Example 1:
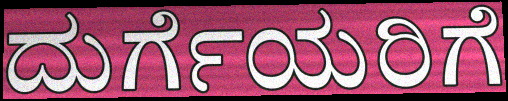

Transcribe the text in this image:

ದುರ್ಗೆಯರಿಗೆ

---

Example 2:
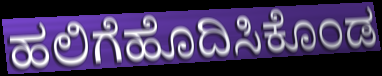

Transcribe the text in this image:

ಹಲಿಗೆಹೊದಿಸಿಕೊಂಡ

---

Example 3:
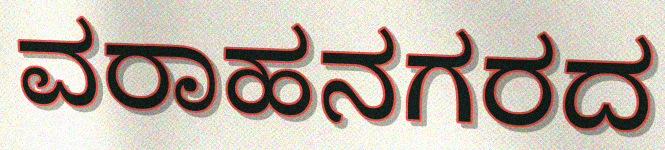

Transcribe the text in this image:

ವರಾಹನಗರದ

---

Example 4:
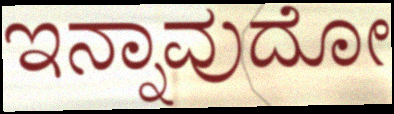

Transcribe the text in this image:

ಇನ್ನಾವುದೋ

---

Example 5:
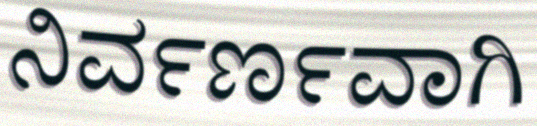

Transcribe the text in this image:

ನಿರ್ವರ್ಣವಾಗಿ